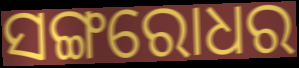
ସଙ୍ଗରୋଧର